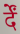
र्दें